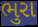
ભુરા